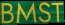
BMST